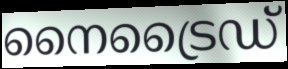
നൈട്രൈഡ്